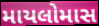
માયલોમાસ